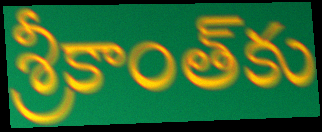
శ్రీకాంత్‌కు